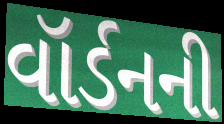
વૉર્ડનની